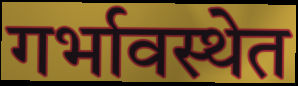
गर्भावस्थेत